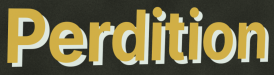
Perdition